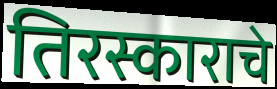
तिरस्काराचे